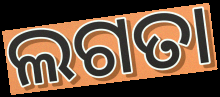
ଲଗତା